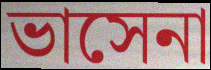
ভাসেনা